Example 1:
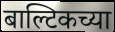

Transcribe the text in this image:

बाल्टिकच्या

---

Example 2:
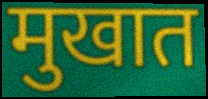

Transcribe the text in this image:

मुखात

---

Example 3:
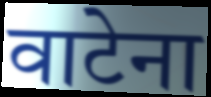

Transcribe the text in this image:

वाटेना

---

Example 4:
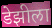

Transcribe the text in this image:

डेझीला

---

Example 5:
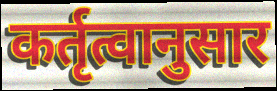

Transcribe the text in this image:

कर्तृत्वानुसार